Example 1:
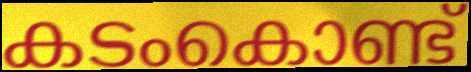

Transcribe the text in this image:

കടംകൊണ്ട്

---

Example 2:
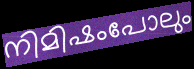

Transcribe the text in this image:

നിമിഷംപോലും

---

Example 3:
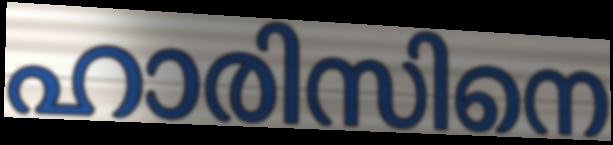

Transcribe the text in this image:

ഹാരിസിനെ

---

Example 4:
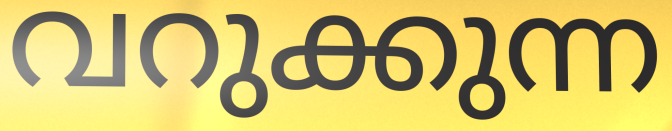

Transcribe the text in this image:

വറുക്കുന്ന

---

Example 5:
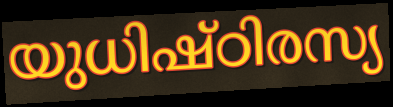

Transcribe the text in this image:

യുധിഷ്ഠിരസ്യ